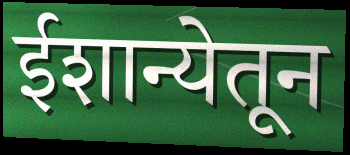
ईशान्येतून